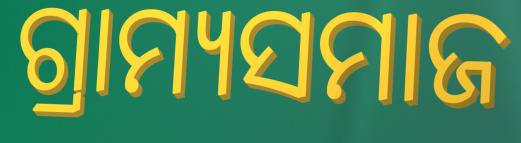
ଗ୍ରାମ୍ୟସମାଜ